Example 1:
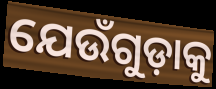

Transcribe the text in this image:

ଯେଉଁଗୁଡ଼ାକୁ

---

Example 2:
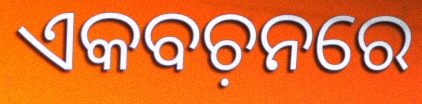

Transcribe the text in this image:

ଏକବଚ଼ନରେ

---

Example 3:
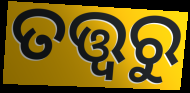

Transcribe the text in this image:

ତତ୍ତ୍ୱରୁ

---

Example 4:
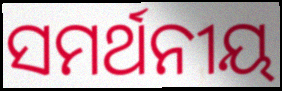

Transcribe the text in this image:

ସମର୍ଥନୀୟ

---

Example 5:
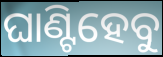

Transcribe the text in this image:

ଘାଣ୍ଟିହେବୁ